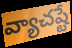
వ్యాచష్టే